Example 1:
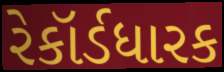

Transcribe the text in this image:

રેકૉર્ડધારક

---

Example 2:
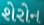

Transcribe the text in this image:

શેરોન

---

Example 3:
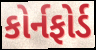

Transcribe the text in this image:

કોર્નફોર્ડ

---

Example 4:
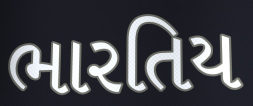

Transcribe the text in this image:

ભારતિય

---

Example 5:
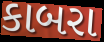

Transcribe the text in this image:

કાબરા